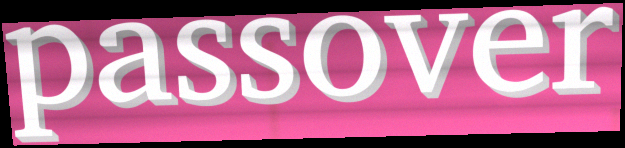
passover